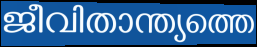
ജീവിതാന്ത്യത്തെ